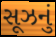
સૂઝનું